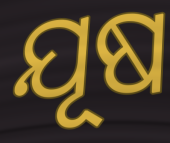
ଯୂଷ